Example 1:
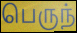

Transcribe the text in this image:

பெருந்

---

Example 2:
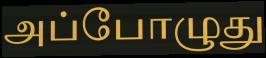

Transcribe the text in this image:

அப்போழுது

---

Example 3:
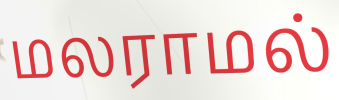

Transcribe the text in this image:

மலராமல்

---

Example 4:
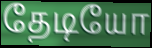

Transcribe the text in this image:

தேடியோ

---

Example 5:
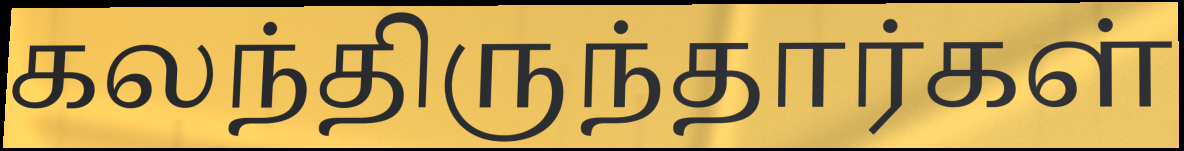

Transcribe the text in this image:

கலந்திருந்தார்கள்